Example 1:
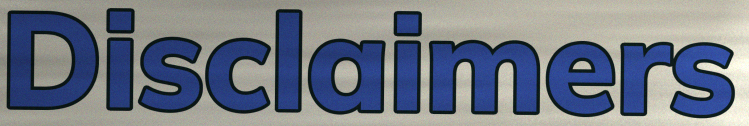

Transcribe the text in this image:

Disclaimers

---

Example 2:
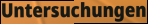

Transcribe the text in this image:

Untersuchungen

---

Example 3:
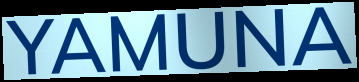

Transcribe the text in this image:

YAMUNA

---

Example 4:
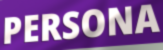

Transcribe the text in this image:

PERSONA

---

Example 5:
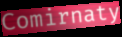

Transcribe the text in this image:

Comirnaty